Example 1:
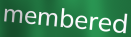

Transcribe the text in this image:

membered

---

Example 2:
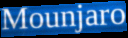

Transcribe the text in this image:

Mounjaro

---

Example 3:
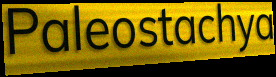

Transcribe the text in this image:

Paleostachya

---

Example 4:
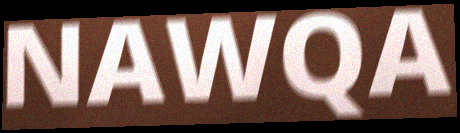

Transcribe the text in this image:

NAWQA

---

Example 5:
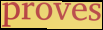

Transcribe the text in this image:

proves